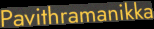
Pavithramanikka